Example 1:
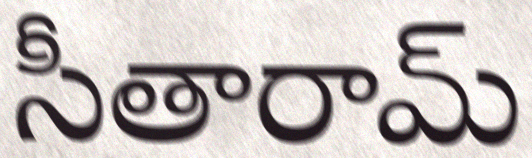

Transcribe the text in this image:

సీతారామ్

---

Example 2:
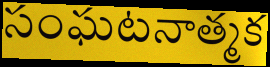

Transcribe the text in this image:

సంఘటనాత్మక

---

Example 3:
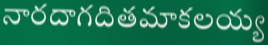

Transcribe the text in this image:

నారదాగదితమాకలయ్య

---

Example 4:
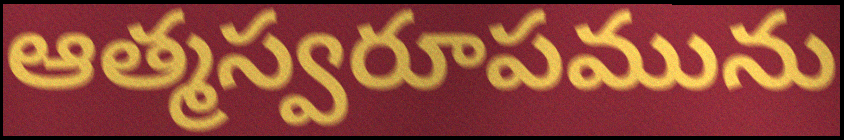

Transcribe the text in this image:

ఆత్మస్వరూపమును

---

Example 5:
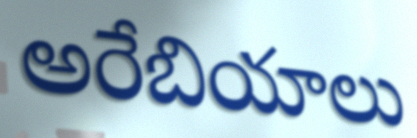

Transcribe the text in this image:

అరేబియాలు